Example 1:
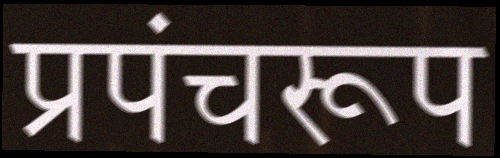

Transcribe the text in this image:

प्रपंचरूप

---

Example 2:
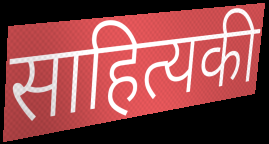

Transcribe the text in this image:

साहित्यकी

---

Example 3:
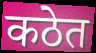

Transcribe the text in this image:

कठेत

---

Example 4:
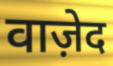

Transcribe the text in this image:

वाज़ेद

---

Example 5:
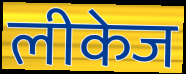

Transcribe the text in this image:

लीकेज